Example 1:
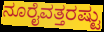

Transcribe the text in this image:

ನೂರೈವತ್ತರಷ್ಟು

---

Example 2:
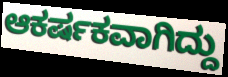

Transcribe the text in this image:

ಆಕರ್ಷಕವಾಗಿದ್ದು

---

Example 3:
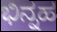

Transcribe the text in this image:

ಭಿನ್ನಹ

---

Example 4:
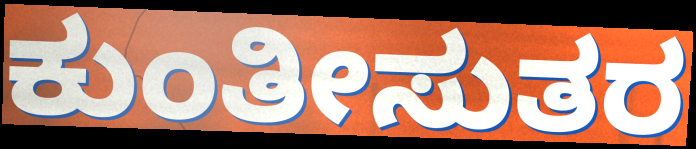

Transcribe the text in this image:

ಕುಂತೀಸುತರ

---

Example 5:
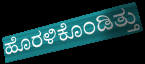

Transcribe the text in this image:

ಹೊರಳಿಕೊಂಡಿತ್ತು